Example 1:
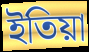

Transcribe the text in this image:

ইতিয়া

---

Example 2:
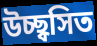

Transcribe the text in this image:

উচ্ছ্বসিত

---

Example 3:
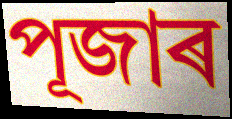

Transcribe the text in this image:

পূজাৰ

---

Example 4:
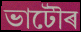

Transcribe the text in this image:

ভাটৌৰ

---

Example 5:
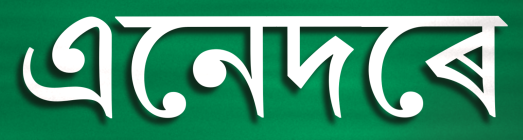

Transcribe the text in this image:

এনেদৰে